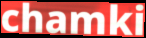
chamki